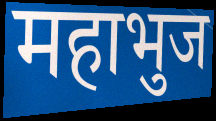
महाभुज